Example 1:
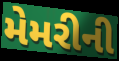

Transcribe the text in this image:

મેમરીની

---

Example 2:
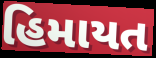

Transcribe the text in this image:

હિમાયત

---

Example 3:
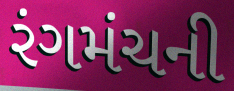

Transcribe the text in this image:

રંગમંચની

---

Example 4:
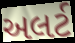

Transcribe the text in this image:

અલર્ટ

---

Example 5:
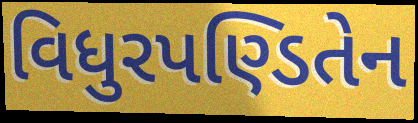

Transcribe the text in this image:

વિધુરપણ્ડિતેન